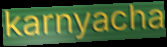
karnyacha